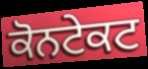
ਕੋਨਟੇਕਟ